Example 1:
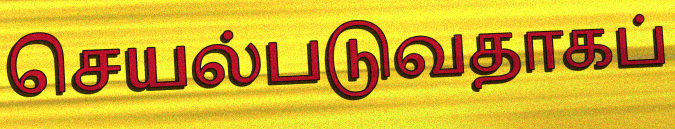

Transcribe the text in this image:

செயல்படுவதாகப்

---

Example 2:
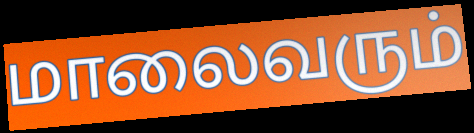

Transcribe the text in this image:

மாலைவரும்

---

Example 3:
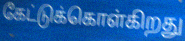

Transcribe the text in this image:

கேட்டுக்கொள்கிறது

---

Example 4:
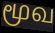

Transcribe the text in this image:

மூவ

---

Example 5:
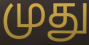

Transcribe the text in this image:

முது